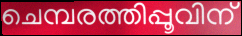
ചെമ്പരത്തിപ്പൂവിന്